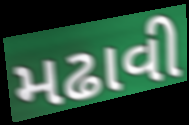
મઢાવી